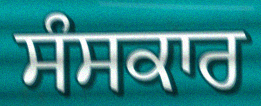
ਸੰਸਕਾਰ